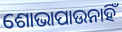
ଶୋଭାପାଉନାହିଁ